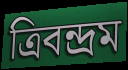
ত্রিবন্দ্রম